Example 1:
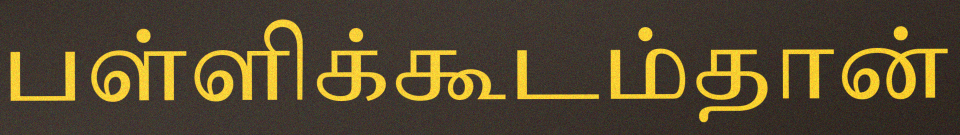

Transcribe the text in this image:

பள்ளிக்கூடம்தான்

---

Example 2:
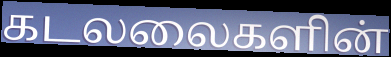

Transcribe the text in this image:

கடலலைகளின்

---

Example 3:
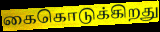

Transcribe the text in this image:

கைகொடுக்கிறது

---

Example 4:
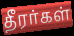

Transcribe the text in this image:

தீரர்கள்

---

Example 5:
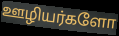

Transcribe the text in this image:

ஊழியர்களோ